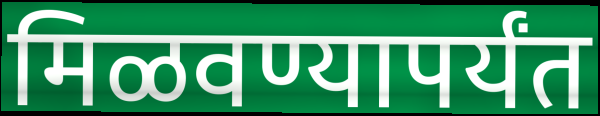
मिळवण्यापर्यंत